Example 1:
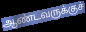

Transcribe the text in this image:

ஆண்டவருக்குச்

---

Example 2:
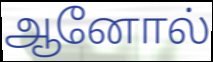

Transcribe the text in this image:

ஆனோல்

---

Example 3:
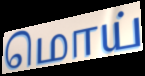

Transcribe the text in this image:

மொய்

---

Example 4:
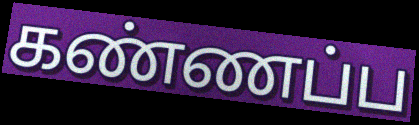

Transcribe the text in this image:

கண்ணப்ப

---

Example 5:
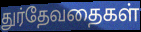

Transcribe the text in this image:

துர்தேவதைகள்